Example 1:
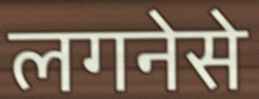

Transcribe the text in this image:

लगनेसे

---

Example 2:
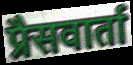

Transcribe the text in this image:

प्रैसवार्ता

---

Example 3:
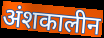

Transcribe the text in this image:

अंशकालीन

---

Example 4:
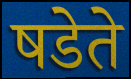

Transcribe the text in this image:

षडेते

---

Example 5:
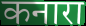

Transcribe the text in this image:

कनारा